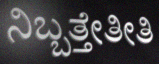
ನಿಬ್ಬತ್ತೇತೀತಿ